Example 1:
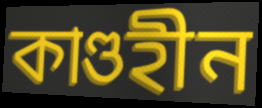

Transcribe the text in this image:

কাণ্ডহীন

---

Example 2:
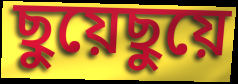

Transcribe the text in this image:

ছুয়েছুয়ে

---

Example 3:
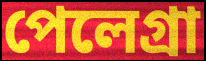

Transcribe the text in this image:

পেলেগ্রা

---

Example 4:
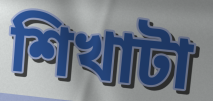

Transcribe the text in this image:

শিখাটা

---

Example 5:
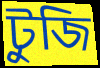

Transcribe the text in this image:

টুজি